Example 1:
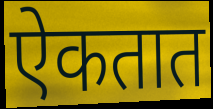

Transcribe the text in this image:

ऐकतात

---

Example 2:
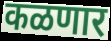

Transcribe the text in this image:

कळणार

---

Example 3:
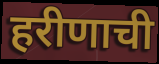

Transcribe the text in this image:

हरीणाची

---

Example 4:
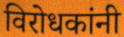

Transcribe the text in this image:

विरोधकांनी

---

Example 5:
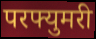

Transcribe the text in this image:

परफ्युमरी